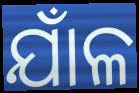
ଯାଁଳ